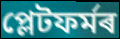
প্লেটফৰ্মৰ